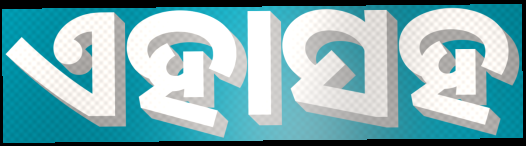
ଏହାସହ